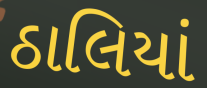
ઠાલિયાં